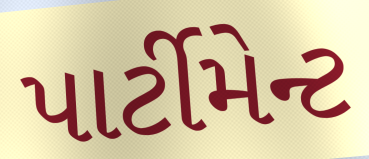
પાર્ટીમેન્ટ